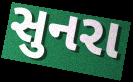
સુનરા